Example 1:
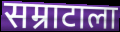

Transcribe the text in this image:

सम्राटाला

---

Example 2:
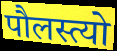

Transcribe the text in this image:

पौलस्त्यो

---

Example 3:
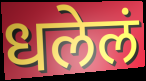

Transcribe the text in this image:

धलेलं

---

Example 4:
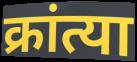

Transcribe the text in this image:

क्रांत्या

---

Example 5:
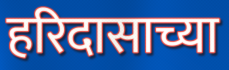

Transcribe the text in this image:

हरिदासाच्या